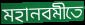
মহানবমীতে